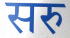
सरु